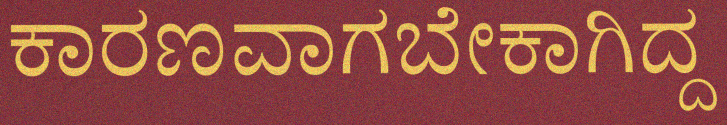
ಕಾರಣವಾಗಬೇಕಾಗಿದ್ದ